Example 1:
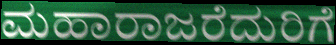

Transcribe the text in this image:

ಮಹಾರಾಜರೆದುರಿಗೆ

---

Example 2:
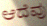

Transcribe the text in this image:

ಆದೆವು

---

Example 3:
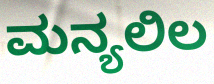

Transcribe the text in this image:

ಮನ್ಯಲಿಲ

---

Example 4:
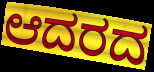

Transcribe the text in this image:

ಆದರದ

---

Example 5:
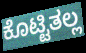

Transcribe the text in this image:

ಕೊಟ್ಟಿತಲ್ಲ